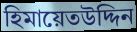
হিমায়েতউদ্দিন